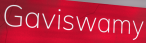
Gaviswamy